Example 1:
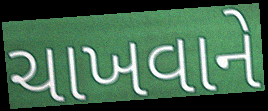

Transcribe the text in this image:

ચાખવાને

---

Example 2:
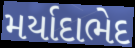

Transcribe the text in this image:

મર્યાદાભેદ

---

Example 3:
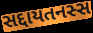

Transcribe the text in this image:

સદ્દાયતનસ્સ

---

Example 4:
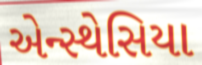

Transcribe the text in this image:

એન્સ્થેસિયા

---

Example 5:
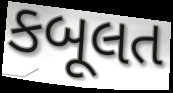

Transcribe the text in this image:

કબૂલત